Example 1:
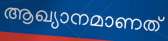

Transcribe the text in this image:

ആഖ്യാനമാണത്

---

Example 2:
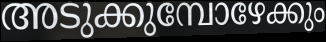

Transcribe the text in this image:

അടുക്കുമ്പോഴേക്കും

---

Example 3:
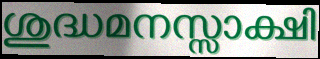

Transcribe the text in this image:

ശുദ്ധമനസ്സാക്ഷി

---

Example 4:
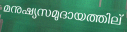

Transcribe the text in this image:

മനുഷ്യസമുദായത്തില്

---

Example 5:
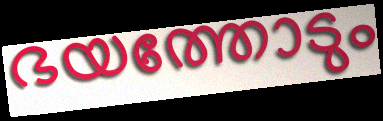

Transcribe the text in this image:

ഭയത്തോടും